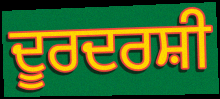
ਦੂਰਦਰਸ਼ੀ